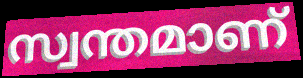
സ്വന്തമാണ്